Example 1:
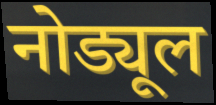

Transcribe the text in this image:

नोड्यूल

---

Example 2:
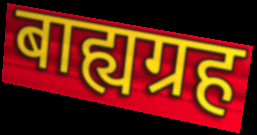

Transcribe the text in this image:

बाह्यग्रह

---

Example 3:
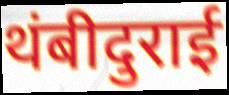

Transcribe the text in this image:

थंबीदुराई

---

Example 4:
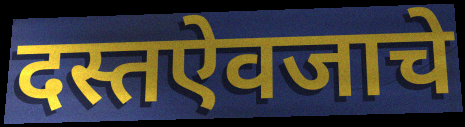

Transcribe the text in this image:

दस्तऐवजाचे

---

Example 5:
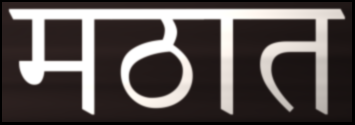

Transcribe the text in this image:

मठात